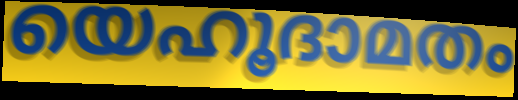
യെഹൂദാമതം